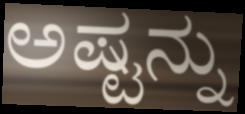
ಅಷ್ಟನ್ನು